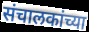
संचालकांच्या